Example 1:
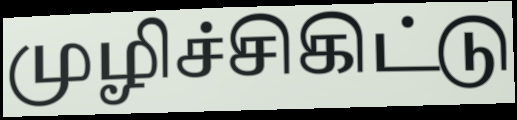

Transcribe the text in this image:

முழிச்சிகிட்டு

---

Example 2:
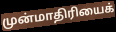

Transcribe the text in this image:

முன்மாதிரியைக்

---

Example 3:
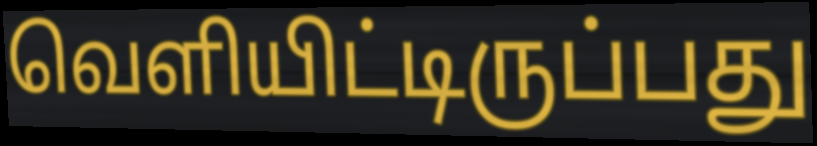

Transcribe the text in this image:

வெளியிட்டிருப்பது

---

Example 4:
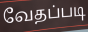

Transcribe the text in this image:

வேதப்படி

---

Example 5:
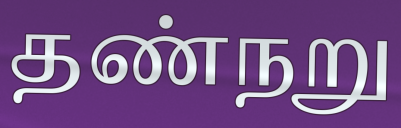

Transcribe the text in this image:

தண்நறு